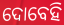
ଦୋବେହି